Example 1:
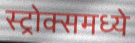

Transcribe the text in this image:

स्ट्रोक्समध्ये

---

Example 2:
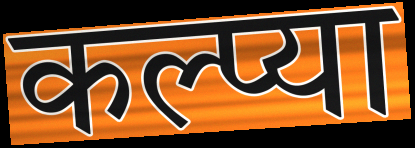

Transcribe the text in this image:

कल्प्या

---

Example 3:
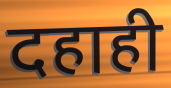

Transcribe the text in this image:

दहाही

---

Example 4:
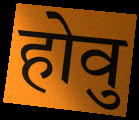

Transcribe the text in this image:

होवु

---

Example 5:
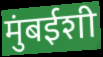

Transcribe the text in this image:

मुंबईशी